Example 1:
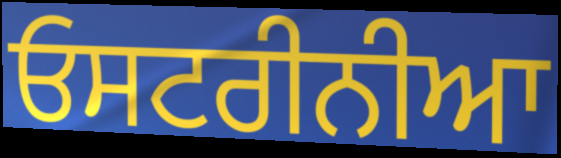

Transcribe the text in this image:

ਓਸਟਰੀਨੀਆ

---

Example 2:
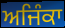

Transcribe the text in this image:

ਅਜਿੰਕਾ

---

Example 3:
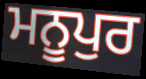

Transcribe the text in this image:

ਮਨੂਪੁਰ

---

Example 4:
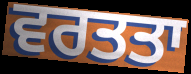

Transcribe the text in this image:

ਵਰਤਤਾ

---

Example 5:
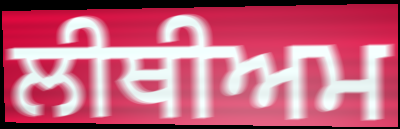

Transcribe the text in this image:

ਲੀਥੀਅਮ